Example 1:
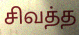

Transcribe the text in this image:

சிவத்த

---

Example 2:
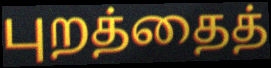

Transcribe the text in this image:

புறத்தைத்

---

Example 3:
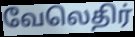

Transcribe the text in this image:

வேலெதிர்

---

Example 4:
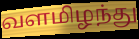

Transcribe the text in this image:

வளமிழந்து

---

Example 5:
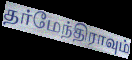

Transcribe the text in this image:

தர்மேந்திராவும்